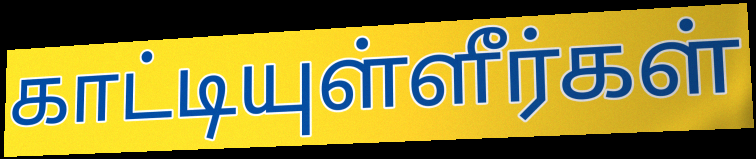
காட்டியுள்ளீர்கள்